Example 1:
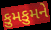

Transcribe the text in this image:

કુમકુમને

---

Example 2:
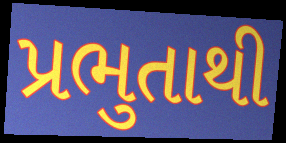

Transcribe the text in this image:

પ્રભુતાથી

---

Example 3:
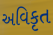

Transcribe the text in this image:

અવિકૃત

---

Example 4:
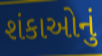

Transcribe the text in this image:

શંકાઓનું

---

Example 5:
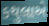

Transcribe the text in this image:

કથુલાએ